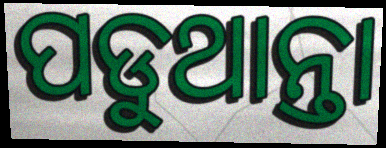
ପଡୁଥାନ୍ତା